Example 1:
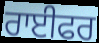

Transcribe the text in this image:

ਰਾਈਫਰ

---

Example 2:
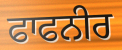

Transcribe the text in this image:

ਫਾਫਨੀਰ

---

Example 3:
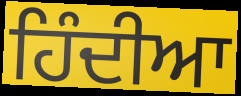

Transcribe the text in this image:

ਹਿੰਦੀਆ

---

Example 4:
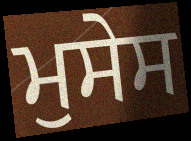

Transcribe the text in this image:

ਮੁਸੇਸ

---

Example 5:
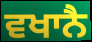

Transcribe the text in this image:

ਵਖਾਨੈ